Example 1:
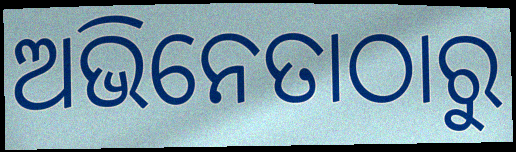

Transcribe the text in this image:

ଅଭିନେତାଠାରୁ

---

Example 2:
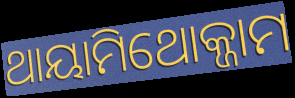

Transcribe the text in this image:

ଥାୟାମିଥୋକ୍ଜାମ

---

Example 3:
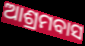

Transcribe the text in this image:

ଆଶ୍ରମବାସ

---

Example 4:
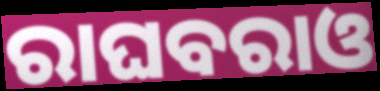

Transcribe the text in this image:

ରାଘବରାଓ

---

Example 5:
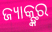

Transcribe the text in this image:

ଜ୍ୟାକ୍ଙ୍କର